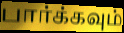
பார்க்கவும்